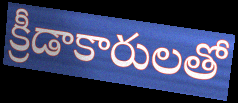
క్రీడాకారులతో